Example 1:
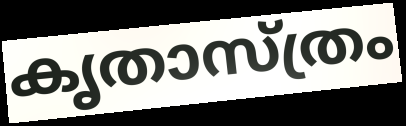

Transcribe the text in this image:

കൃതാസ്ത്രം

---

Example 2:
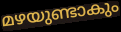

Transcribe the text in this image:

മഴയുണ്ടാകും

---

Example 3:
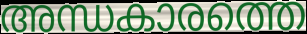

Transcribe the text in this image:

അന്ധകാരത്തെ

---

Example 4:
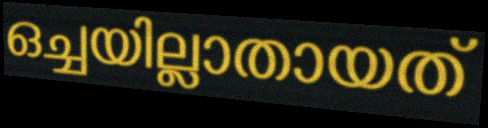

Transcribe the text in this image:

ഒച്ചയില്ലാതായത്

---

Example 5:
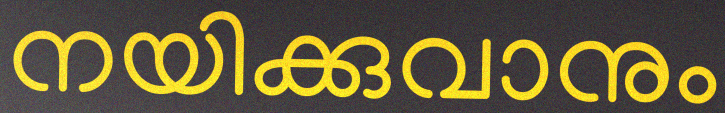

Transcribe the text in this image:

നയിക്കുവാനും